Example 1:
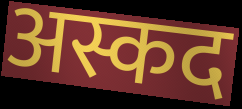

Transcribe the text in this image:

अस्कद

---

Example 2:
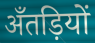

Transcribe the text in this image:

अँतड़ियों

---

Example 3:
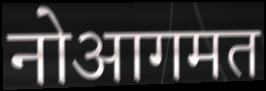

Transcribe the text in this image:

नोआगमत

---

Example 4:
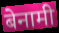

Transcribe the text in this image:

बेनामी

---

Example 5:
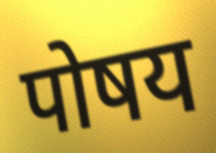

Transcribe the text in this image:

पोषय